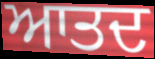
ਆਤਦ